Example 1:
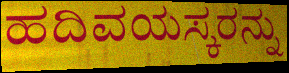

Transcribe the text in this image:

ಹದಿವಯಸ್ಕರನ್ನು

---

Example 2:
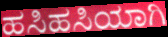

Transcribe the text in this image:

ಹಸಿಹಸಿಯಾಗಿ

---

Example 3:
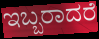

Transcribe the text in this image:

ಇಬ್ಬರಾದರೆ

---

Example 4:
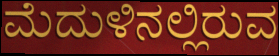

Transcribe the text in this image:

ಮೆದುಳಿನಲ್ಲಿರುವ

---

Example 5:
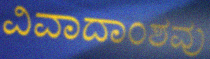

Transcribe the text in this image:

ವಿವಾದಾಂಶವು